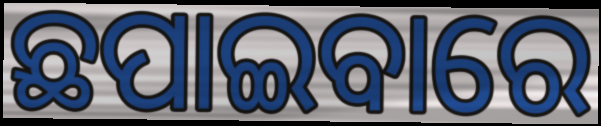
ଛପାଇବାରେ